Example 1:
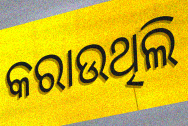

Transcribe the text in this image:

କରାଉଥିଲି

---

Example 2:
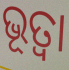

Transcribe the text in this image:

ଭୂତ୍ଵା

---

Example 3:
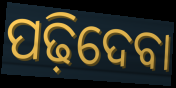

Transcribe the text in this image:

ପଢ଼ିଦେବା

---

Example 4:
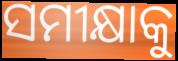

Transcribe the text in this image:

ସମୀକ୍ଷାକୁ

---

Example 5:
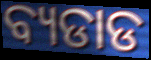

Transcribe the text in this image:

ବ୍ୟଡାଡ